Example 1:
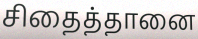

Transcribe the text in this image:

சிதைத்தானை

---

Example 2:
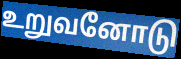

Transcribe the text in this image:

உறுவனோடு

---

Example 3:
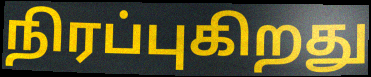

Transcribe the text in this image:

நிரப்புகிறது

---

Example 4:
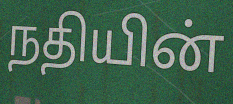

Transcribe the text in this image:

நதியின்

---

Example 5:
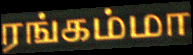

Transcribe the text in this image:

ரங்கம்மா